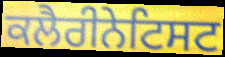
ਕਲੈਰੀਨੇਟਿਸਟ